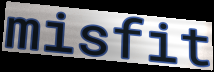
misfit